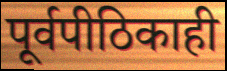
पूर्वपीठिकाही